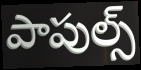
పాపుల్స్